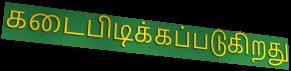
கடைபிடிக்கப்படுகிறது